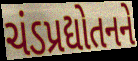
ચંડપ્રદ્યોતનને